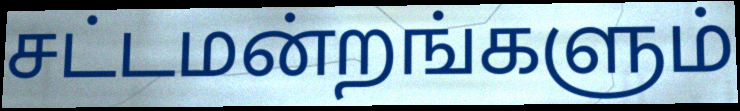
சட்டமன்றங்களும்